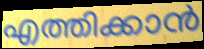
എത്തിക്കാൻ